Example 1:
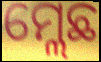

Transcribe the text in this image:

ମ୍ଲେଛ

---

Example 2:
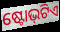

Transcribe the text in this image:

ଷ୍ଟୋଭ୍‌ଟିଏ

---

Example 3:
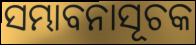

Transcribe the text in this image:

ସମ୍ଭାବନାସୂଚକ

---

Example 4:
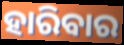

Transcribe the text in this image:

ହାରିବାର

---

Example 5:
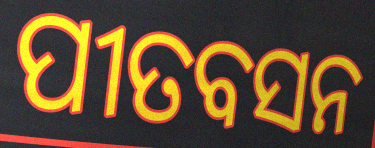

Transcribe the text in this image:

ପୀତବସନ